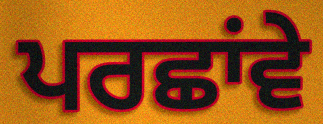
ਪਰਛਾਂਵੇ